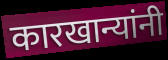
कारखान्यांनी